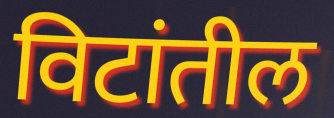
विटांतील